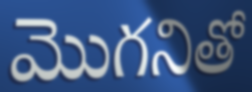
మొగనితో